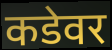
कडेवर